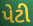
પેટી